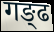
गङ्ढ